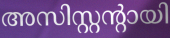
അസിസ്റ്റന്റായി